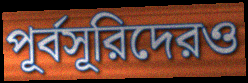
পূর্বসূরিদেরও